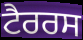
ਟੈਰਰਸ